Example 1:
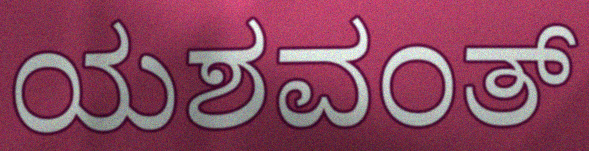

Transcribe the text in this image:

ಯಶವಂತ್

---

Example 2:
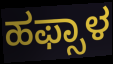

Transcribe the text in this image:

ಹಫ್ಸಾಳ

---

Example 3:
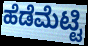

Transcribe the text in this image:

ಹೆಡೆಮೆಟ್ಟಿ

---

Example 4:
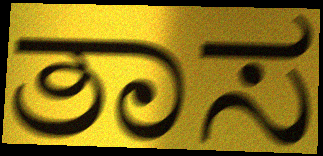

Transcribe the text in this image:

ತಾಸ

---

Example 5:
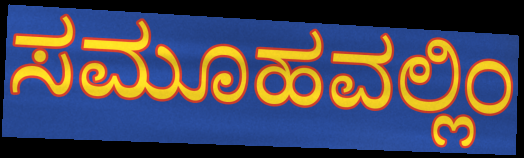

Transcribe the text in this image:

ಸಮೂಹವಲ್ಲಿಂ